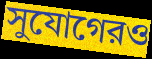
সুযোগেরও